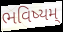
ભવિષ્યમ્